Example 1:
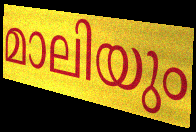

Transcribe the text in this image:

മാലിയും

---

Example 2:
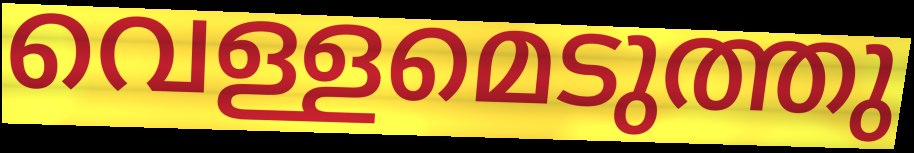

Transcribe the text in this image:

വെള്ളമെടുത്തു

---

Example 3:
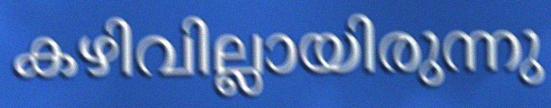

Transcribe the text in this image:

കഴിവില്ലായിരുന്നു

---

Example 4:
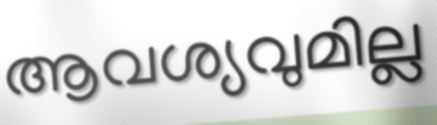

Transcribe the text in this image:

ആവശ്യവുമില്ല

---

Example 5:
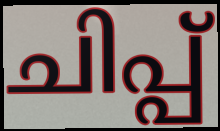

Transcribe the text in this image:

ചിപ്പ്